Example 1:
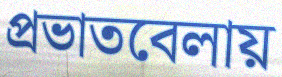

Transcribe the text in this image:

প্রভাতবেলায়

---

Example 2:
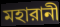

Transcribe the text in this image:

মহারানী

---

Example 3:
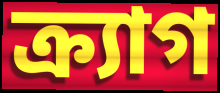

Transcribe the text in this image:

ক্র্যাগ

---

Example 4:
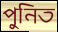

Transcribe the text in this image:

পুনিত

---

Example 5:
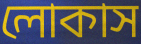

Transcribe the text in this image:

লোকাস